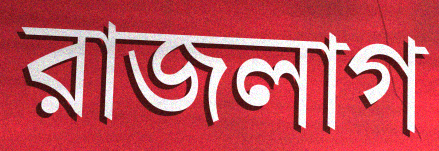
রাজলাগ